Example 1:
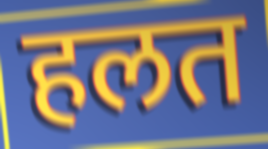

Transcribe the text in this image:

हलत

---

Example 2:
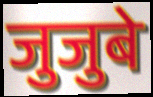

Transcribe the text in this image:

जुजुबे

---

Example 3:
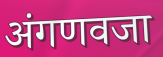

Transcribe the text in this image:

अंगणवजा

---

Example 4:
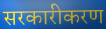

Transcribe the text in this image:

सरकारीकरण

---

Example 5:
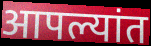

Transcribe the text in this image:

आपल्यांत